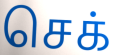
செக்